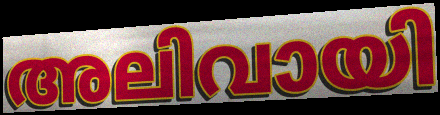
അലിവായി